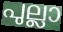
പുല്ലാ